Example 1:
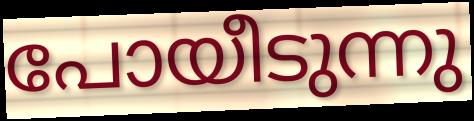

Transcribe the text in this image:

പോയീടുന്നു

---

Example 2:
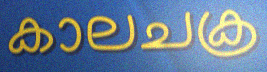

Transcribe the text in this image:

കാലചക്ര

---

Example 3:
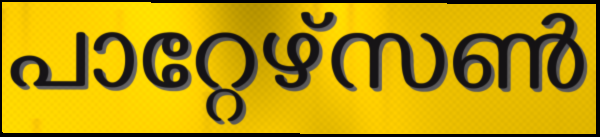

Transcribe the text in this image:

പാറ്റേഴ്സൺ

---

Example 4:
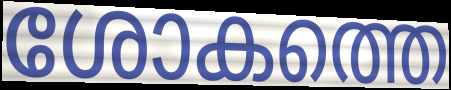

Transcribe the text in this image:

ശോകത്തെ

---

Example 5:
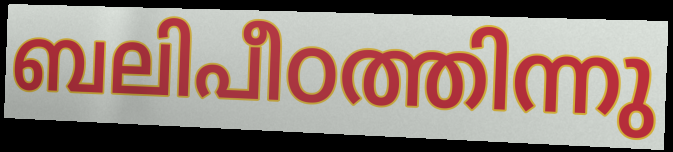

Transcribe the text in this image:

ബലിപീഠത്തിന്നു